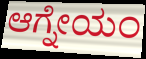
ಆಗ್ನೇಯಂ